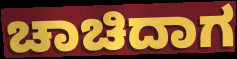
ಚಾಚಿದಾಗ